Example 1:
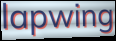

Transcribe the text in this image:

lapwing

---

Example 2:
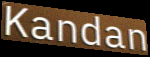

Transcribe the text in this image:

Kandan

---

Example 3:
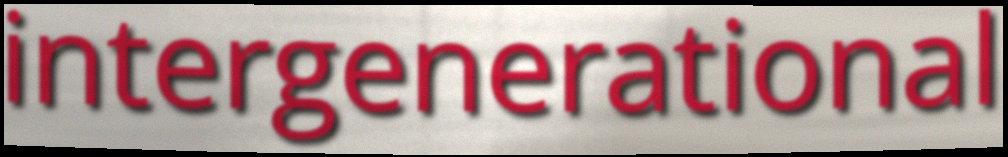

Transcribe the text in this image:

intergenerational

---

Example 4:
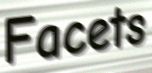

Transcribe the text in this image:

Facets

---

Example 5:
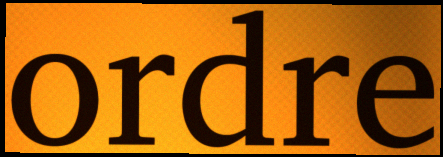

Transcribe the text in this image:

ordre